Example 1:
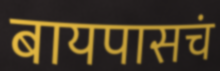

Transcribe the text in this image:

बायपासचं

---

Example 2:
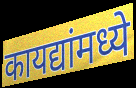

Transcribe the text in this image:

कायद्यांमध्ये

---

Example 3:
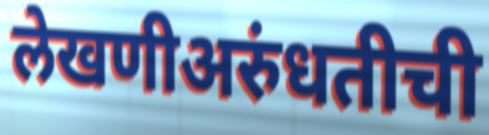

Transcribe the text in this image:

लेखणीअरुंधतीची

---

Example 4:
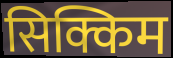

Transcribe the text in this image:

सिक्किम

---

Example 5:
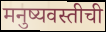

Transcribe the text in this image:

मनुष्यवस्तीची